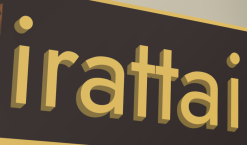
irattai